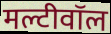
मल्टीवॉल